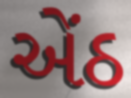
એંઠ